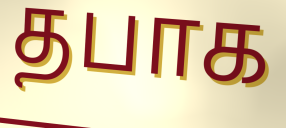
தபாக